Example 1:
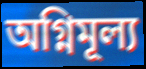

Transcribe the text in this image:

অগ্নিমূল্য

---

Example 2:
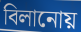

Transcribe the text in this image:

বিলানোয়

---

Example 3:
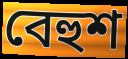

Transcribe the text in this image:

বেহুশ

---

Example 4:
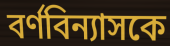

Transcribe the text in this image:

বর্ণবিন্যাসকে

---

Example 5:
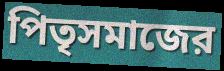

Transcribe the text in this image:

পিতৃসমাজের